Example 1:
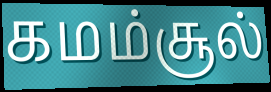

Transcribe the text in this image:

கமம்சூல்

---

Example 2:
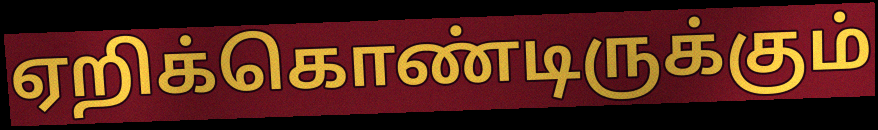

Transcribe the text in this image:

ஏறிக்கொண்டிருக்கும்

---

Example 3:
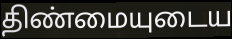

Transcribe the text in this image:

திண்மையுடைய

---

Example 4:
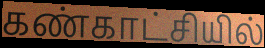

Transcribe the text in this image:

கண்காட்சியில்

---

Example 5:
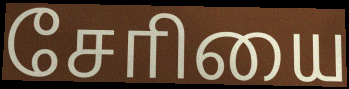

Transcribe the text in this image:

சேரியை